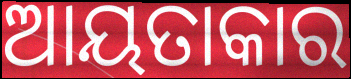
ଆୟତାକାର